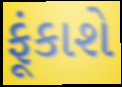
ફૂંકાશે